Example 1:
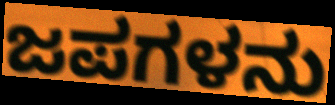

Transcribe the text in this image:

ಜಪಗಳನು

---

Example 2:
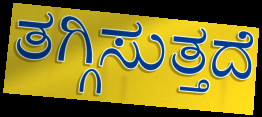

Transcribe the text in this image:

ತಗ್ಗಿಸುತ್ತದೆ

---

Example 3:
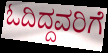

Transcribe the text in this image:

ಓದಿದ್ದವರಿಗೆ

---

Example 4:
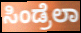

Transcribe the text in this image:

ಸಿಂಡ್ರೆಲಾ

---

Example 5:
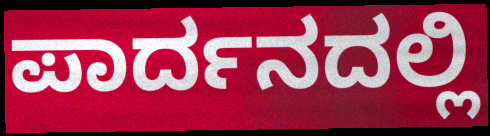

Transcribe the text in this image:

ಪಾರ್ದನದಲ್ಲಿ